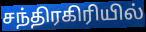
சந்திரகிரியில்